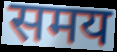
समय